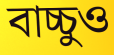
বাচ্চুও